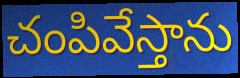
చంపివేస్తాను